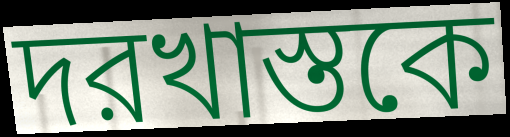
দরখাস্তকে